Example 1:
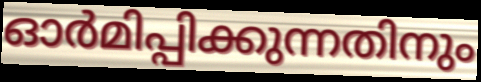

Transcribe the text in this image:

ഓർമിപ്പിക്കുന്നതിനും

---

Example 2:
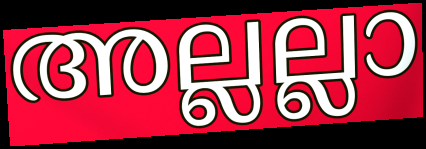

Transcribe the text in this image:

അല്ലല്ലാ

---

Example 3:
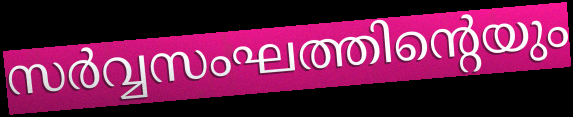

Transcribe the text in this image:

സർവ്വസംഘത്തിന്റെയും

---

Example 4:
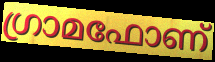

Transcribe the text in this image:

ഗ്രാമഫോണ്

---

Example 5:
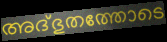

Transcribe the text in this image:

അദ്ഭുതത്തോടെ